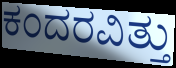
ಕಂದರವಿತ್ತು